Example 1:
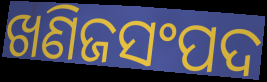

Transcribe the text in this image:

ଖଣିଜସଂପଦ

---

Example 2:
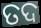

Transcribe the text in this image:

ତଦ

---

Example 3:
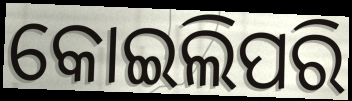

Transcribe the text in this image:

କୋଇଲିପରି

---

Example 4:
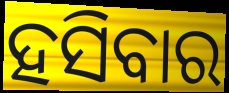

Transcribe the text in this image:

ହସିବାର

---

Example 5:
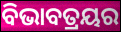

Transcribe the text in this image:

ବିଭାବତ୍ରୟର